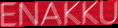
ENAKKU